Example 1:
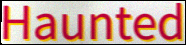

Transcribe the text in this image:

Haunted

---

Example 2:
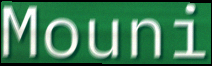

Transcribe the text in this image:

Mouni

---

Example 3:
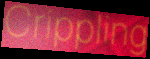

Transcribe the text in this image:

Crippling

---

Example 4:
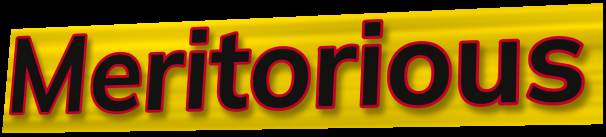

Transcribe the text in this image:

Meritorious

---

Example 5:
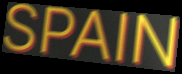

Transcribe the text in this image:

SPAIN